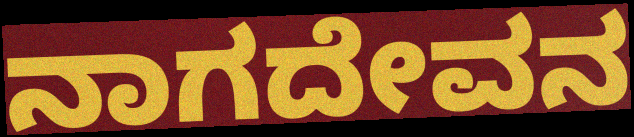
ನಾಗದೇವನ